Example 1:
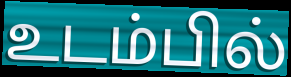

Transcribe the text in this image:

உடம்பில்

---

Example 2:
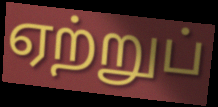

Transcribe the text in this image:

ஏற்றுப்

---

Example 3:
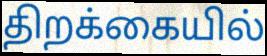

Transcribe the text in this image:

திறக்கையில்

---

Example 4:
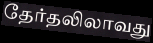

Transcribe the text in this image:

தேர்தலிலாவது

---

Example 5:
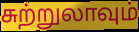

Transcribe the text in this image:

சுற்றுலாவும்